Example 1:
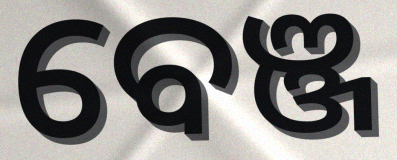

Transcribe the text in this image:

ବେଞ୍ଜ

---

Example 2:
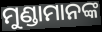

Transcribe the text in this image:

ମୁଣ୍ଡାମାନଙ୍କ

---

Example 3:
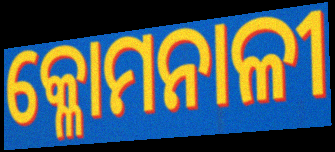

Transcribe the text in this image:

କ୍ଳୋମନାଳୀ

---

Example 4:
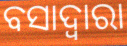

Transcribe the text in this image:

ବସାଦ୍ୱାରା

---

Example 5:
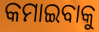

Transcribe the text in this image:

କମାଇବାକୁ